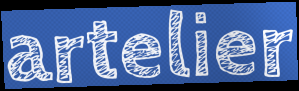
artelier